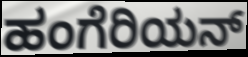
ಹಂಗೆರಿಯನ್